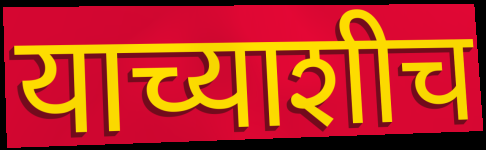
याच्याशीच